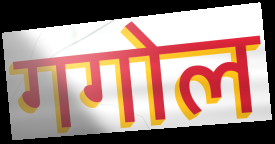
गगोल